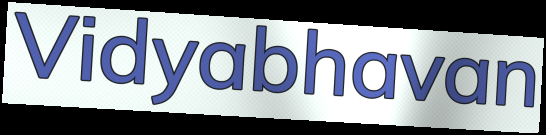
Vidyabhavan